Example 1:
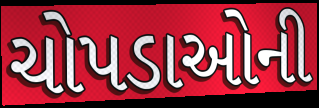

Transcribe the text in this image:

ચોપડાઓની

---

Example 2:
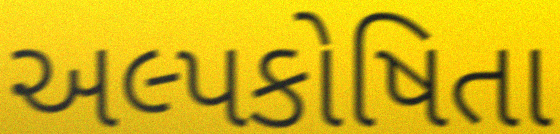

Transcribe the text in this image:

અલ્પકોષિતા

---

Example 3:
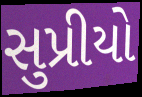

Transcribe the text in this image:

સુપ્રીયો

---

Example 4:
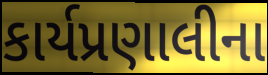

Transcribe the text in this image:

કાર્યપ્રણાલીના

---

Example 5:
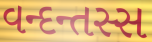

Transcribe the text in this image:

વન્દન્તસ્સ